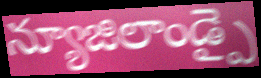
న్యూజిలాండ్పై